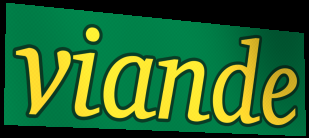
viande